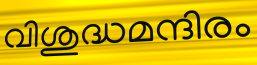
വിശുദ്ധമന്ദിരം